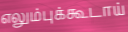
எலும்புக்கூடாய்